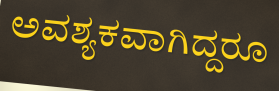
ಅವಶ್ಯಕವಾಗಿದ್ದರೂ